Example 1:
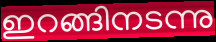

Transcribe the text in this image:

ഇറങ്ങിനടന്നു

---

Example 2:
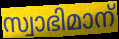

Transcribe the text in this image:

സ്വാഭിമാന്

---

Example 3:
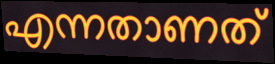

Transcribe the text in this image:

എന്നതാണത്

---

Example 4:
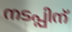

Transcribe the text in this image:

നടപ്പിന്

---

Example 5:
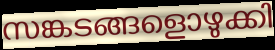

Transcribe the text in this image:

സങ്കടങ്ങളൊഴുക്കി